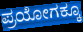
ಪ್ರಯೋಗಕ್ಕೂ